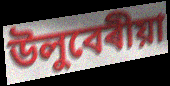
উলুবেৰীয়া